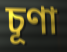
চূণা